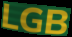
LGB